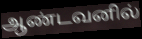
ஆண்டவனில்